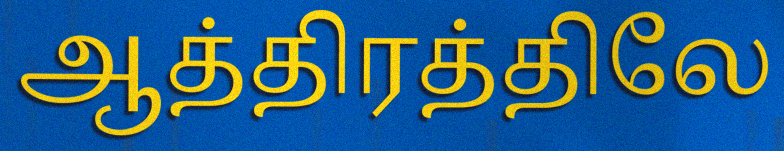
ஆத்திரத்திலே